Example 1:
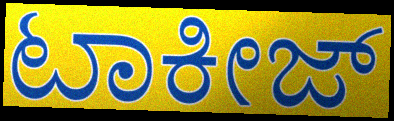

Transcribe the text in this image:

ಟಾಕೀಜ್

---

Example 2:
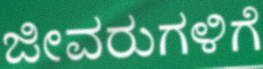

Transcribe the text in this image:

ಜೀವರುಗಳಿಗೆ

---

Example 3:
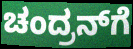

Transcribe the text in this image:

ಚಂದ್ರನ್‌ಗೆ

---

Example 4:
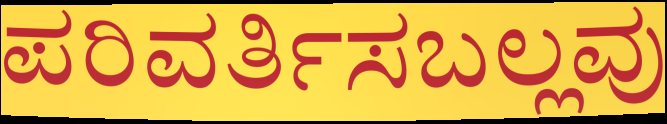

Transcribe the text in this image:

ಪರಿವರ್ತಿಸಬಲ್ಲವು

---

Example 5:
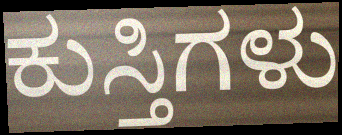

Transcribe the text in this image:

ಕುಸ್ತಿಗಳು